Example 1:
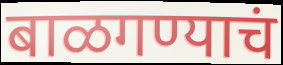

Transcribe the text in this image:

बाळगण्याचं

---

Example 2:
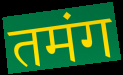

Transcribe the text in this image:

तमंग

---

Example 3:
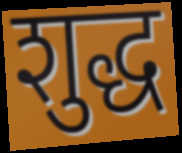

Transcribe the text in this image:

शुद्ध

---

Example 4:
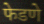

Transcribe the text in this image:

फेडणे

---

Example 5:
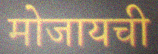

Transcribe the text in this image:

मोजायची